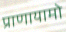
प्राणायामो